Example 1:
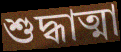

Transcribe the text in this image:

শুদ্ধাত্মা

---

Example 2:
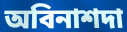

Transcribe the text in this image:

অবিনাশদা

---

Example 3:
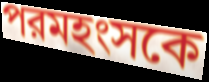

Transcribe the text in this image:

পরমহংসকে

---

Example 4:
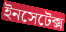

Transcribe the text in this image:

ইনসেটেক্স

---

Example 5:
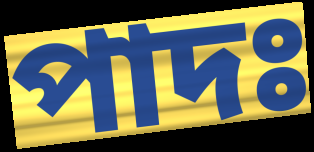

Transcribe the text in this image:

পাদঃ